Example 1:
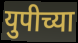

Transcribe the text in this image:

युपीच्या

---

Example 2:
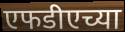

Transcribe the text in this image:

एफडीएच्या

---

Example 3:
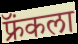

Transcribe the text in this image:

फ्रॅंकला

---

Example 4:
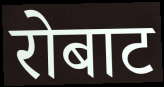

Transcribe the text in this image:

रोबाट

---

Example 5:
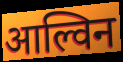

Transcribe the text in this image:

आल्विन